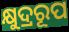
କ୍ଷୁଦ୍ରରୂପ